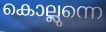
കൊല്ലുന്നെ